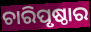
ଚାରିପୃଷ୍ଠାର